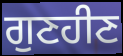
ਗੁਣਹੀਣ